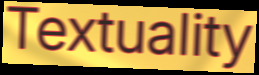
Textuality